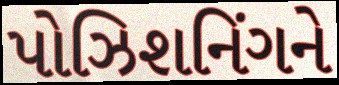
પોઝિશનિંગને